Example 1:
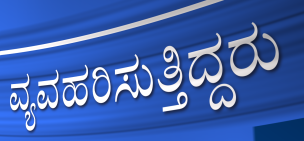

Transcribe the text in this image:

ವ್ಯವಹರಿಸುತ್ತಿದ್ದರು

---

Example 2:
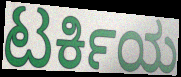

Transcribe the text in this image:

ಟರ್ಕಿಯ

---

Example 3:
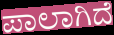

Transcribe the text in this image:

ಪಾಲಾಗಿದೆ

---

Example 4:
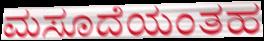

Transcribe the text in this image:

ಮಸೂದೆಯಂತಹ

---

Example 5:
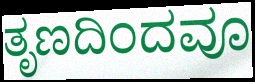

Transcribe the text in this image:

ತೃಣದಿಂದವೂ